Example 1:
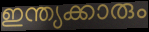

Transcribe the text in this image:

ഇന്ത്യക്കാരും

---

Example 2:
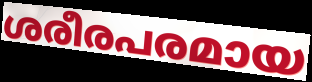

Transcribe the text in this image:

ശരീരപരമായ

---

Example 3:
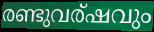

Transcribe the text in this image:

രണ്ടുവര്ഷവും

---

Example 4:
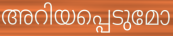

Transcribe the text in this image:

അറിയപ്പെടുമോ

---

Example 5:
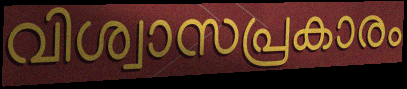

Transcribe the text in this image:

വിശ്വാസപ്രകാരം